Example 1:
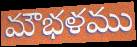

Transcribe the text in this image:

మౌభళము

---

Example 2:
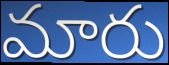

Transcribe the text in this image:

మారు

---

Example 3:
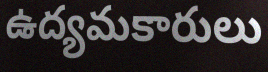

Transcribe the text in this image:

ఉద్యమకారులు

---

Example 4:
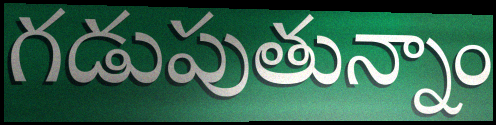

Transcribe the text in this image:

గడుపుతున్నాం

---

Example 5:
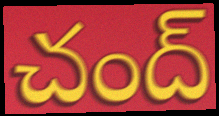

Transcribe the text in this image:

చంద్